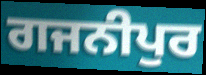
ਗਜਨੀਪੁਰ